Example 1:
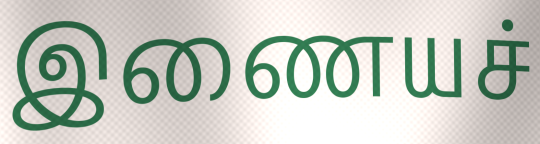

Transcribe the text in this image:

இணையச்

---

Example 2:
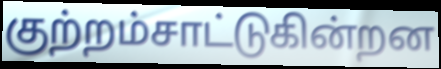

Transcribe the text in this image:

குற்றம்சாட்டுகின்றன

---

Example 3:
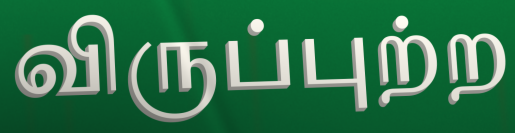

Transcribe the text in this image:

விருப்புற்ற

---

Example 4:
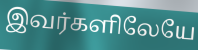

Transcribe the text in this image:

இவர்களிலேயே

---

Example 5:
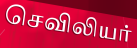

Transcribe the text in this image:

செவிலியர்